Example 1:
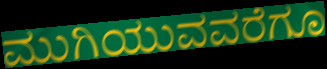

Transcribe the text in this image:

ಮುಗಿಯುವವರೆಗೂ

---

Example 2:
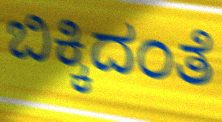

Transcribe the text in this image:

ಬಿಕ್ಕಿದಂತೆ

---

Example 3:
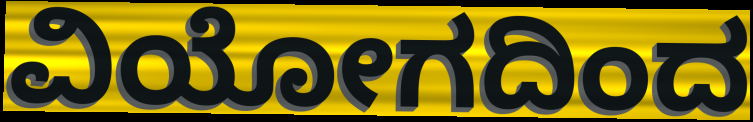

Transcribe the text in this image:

ವಿಯೋಗದಿಂದ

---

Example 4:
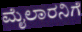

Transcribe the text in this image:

ಮೈಲಾರನಿಗೆ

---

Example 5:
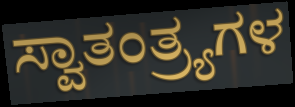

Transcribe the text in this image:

ಸ್ವಾತಂತ್ರ್ಯಗಳ